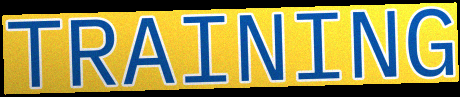
TRAINING